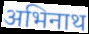
अभिनाथ